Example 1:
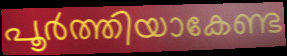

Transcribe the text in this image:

പൂർത്തിയാകേണ്ട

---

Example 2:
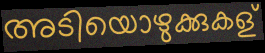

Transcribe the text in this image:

അടിയൊഴുക്കുകള്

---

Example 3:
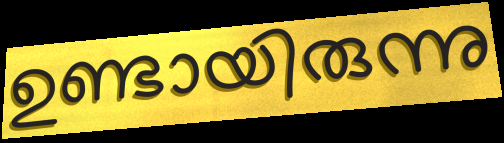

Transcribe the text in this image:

ഉണ്ടായിരുന്നു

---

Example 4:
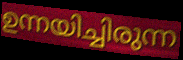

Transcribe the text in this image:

ഉന്നയിച്ചിരുന്ന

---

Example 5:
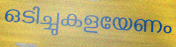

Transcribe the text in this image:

ഒടിച്ചുകളയേണം